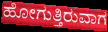
ಹೋಗುತ್ತಿರುವಾಗ